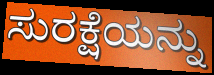
ಸುರಕ್ಷೆಯನ್ನು